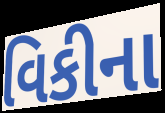
વિકીના